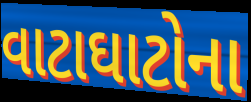
વાટાઘાટોના